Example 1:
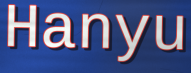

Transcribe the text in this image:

Hanyu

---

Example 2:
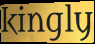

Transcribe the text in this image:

kingly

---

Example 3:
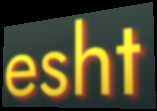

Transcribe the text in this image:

esht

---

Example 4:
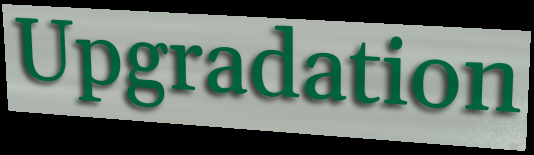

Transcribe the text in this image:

Upgradation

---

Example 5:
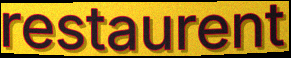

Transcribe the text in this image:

restaurent